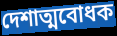
দেশাত্মবোধক